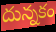
దున్నకం